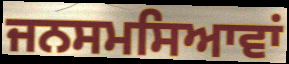
ਜਨਸਮਸਿਆਵਾਂ